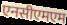
एनसीएमएम